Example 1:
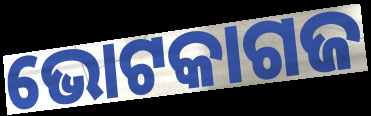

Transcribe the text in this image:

ଭୋଟକାଗଜ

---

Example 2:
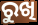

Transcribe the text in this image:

ରୁଖି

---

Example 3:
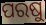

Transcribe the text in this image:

ପରଷୁ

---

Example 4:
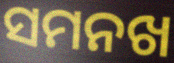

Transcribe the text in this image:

ସମନଖ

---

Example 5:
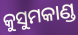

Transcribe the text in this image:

କୁସୁମକାଣ୍ଡ